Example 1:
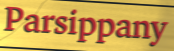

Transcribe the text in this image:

Parsippany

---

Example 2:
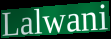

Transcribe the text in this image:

Lalwani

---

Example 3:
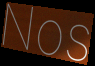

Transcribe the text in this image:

Nos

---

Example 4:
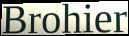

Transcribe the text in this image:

Brohier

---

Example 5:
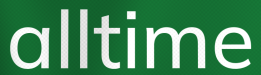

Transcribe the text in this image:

alltime